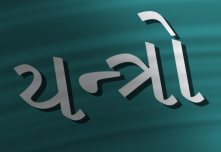
યન્ત્રો